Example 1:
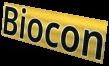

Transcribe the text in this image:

Biocon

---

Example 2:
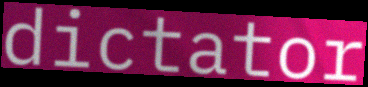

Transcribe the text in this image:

dictator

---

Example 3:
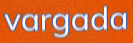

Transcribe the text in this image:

vargada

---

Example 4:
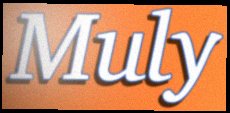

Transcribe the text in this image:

Muly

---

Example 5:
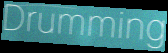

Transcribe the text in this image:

Drumming